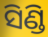
ସିଣ୍ଡି